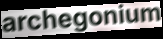
archegonium